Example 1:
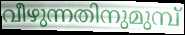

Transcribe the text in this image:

വീഴുന്നതിനുമുമ്പ്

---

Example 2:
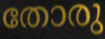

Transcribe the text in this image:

തോരു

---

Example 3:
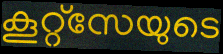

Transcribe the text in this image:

കൂറ്റ്സേയുടെ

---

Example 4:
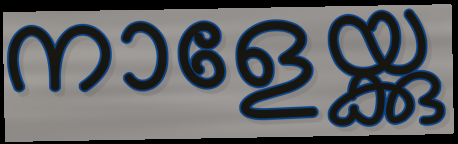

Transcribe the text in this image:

നാളേയ്ക്കു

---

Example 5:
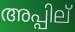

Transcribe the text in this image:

അപ്പില്